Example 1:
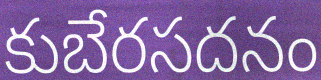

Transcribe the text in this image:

కుబేరసదనం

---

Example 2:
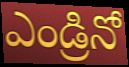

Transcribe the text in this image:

ఎండ్రినో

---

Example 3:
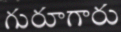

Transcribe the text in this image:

గురూగారు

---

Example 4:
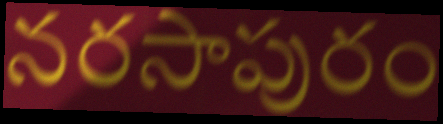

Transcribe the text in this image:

నరసాపురం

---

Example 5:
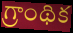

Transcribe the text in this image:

గ్రాంథిక